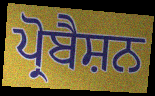
ਪ੍ਰੋਬੈਸ਼ਨ